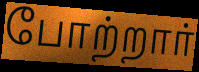
போற்றார்